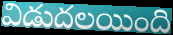
విడుదలయింది